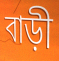
বাড়ী